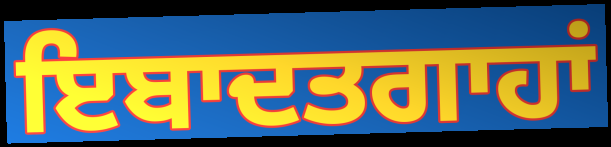
ਇਬਾਦਤਗਾਹਾਂ